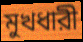
মুখধারী